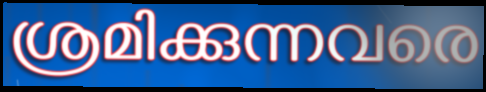
ശ്രമിക്കുന്നവരെ